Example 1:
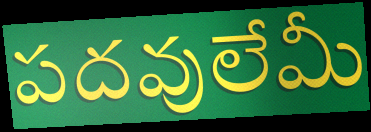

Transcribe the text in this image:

పదవులేమీ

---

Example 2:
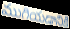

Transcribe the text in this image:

ముగియడానికి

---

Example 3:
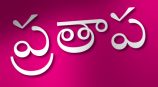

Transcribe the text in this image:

ప్రతాప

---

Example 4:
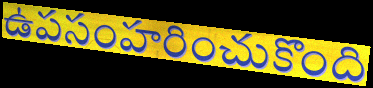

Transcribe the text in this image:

ఉపసంహరించుకొంది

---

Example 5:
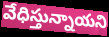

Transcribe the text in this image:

వేధిస్తున్నాయని